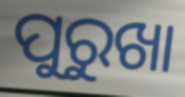
ପୁରୁଖା